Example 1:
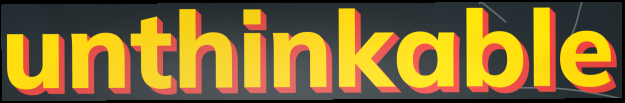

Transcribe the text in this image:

unthinkable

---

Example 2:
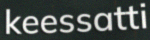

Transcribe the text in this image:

keessatti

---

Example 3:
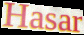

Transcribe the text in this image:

Hasar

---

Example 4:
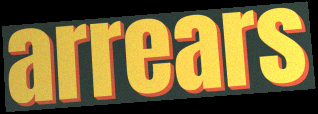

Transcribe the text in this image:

arrears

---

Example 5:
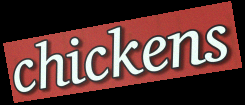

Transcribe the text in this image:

chickens